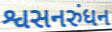
શ્વસનરુંધન